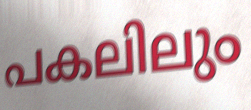
പകലിലും